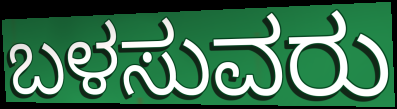
ಬಳಸುವರು